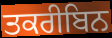
ਤਕਰੀਬਿਨ